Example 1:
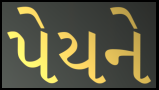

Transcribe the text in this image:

પેયને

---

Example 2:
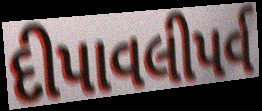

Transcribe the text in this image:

દીપાવલીપર્વ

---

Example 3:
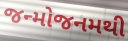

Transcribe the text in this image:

જન્મોજનમથી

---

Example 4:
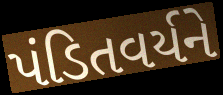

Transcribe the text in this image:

પંડિતવર્યને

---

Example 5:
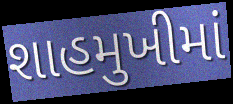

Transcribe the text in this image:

શાહમુખીમાં